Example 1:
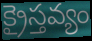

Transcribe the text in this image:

క్రైస్తవ్యం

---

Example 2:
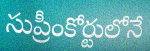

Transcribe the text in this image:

సుప్రీంకోర్టులోనే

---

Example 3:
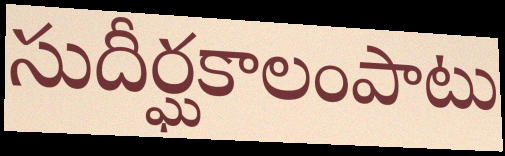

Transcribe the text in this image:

సుదీర్ఘకాలంపాటు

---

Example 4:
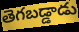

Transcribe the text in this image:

తెగబడ్డాడు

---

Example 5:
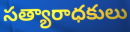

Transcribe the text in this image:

సత్యారాధకులు